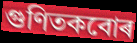
গুণিতকবোৰ